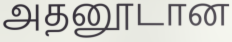
அதனூடான